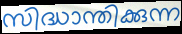
സിദ്ധാന്തിക്കുന്ന